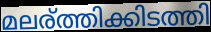
മലര്ത്തിക്കിടത്തി